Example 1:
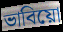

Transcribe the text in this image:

ভাবিয়ো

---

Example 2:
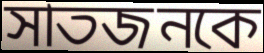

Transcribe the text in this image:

সাতজনকে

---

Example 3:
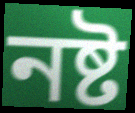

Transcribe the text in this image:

নষ্ট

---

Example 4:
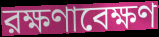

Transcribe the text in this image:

রক্ষণাবেক্ষণ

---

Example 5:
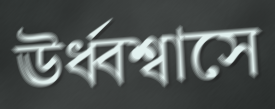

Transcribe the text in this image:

ঊর্ধ্বশ্বাসে